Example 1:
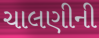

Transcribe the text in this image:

ચાલણીની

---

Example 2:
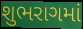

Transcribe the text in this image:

શુભરાગમાં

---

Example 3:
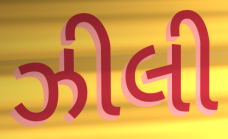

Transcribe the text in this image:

ઝીલી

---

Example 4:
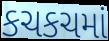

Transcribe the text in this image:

કચકચમાં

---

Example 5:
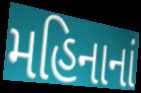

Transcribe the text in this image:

મહિનાનાં